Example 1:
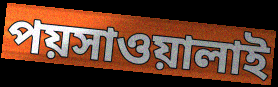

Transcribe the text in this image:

পয়সাওয়ালাই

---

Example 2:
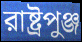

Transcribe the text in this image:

রাষ্ট্রপুঞ্জ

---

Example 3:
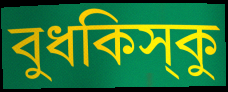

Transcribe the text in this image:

বুধকিস্‌কু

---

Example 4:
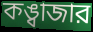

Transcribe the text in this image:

কঙ্বাজার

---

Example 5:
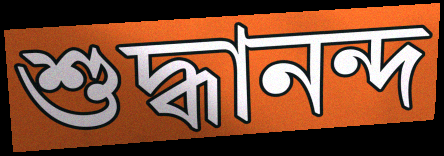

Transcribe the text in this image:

শুদ্ধানন্দ